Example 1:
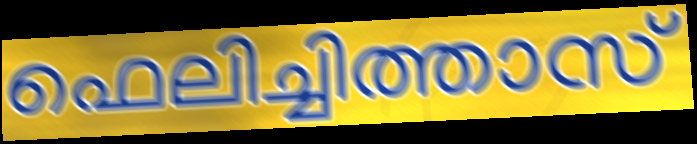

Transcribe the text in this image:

ഫെലിച്ചിത്താസ്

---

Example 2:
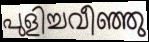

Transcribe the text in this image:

പുളിച്ചവീഞ്ഞു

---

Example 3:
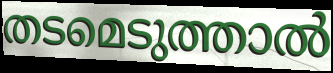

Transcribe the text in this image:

തടമെടുത്താൽ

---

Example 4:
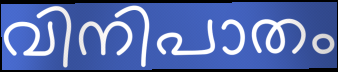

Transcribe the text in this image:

വിനിപാതം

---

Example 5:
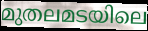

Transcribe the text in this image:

മുതലമടയിലെ